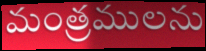
మంత్రములను